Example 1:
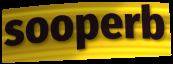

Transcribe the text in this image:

sooperb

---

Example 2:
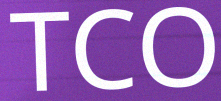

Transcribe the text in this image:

TCO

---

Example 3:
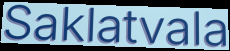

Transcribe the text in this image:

Saklatvala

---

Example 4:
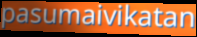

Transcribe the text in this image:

pasumaivikatan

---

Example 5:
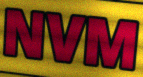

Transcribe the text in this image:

NVM